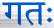
गतः